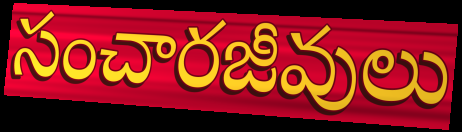
సంచారజీవులు